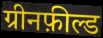
ग्रीनफ़ील्ड